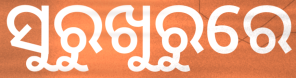
ସୁରୁଖୁରୁରେ